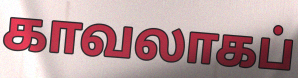
காவலாகப்